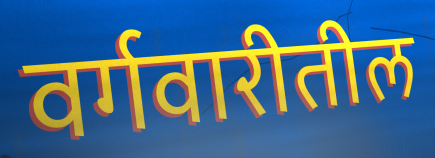
वर्गवारीतील